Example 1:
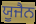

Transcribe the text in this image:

ਯੂਜੈਨ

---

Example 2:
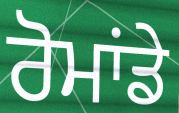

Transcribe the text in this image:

ਰੋਮਾਂਡੇ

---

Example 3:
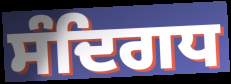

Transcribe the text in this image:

ਸੰਦਿਗਧ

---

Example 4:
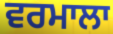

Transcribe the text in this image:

ਵਰਮਾਲਾ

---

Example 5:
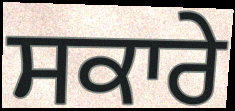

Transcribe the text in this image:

ਸਕਾਰੇ